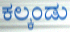
ಕಲ್ಕಂಡು